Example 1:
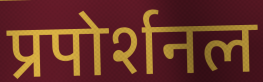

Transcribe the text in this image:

प्रपोर्शनल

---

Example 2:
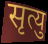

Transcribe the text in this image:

सृत्यु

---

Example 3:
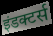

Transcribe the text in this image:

इंडक्टर्स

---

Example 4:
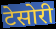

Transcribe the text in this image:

टेसोरी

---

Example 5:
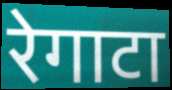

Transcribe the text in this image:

रेगाटा